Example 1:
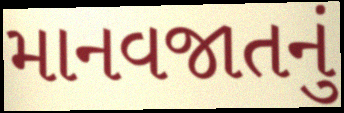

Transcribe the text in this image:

માનવજાતનું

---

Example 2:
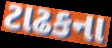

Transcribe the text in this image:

ટાઢકના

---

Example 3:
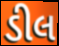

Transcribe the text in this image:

ડીલ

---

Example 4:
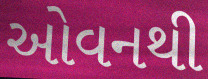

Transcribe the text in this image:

ઓવનથી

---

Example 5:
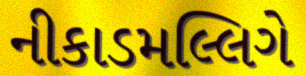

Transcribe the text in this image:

નીકાડમલ્લિગે